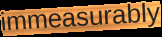
immeasurably